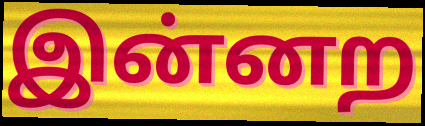
இன்னற